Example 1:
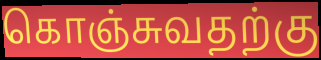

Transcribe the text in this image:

கொஞ்சுவதற்கு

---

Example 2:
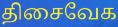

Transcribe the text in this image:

திசைவேக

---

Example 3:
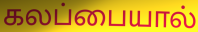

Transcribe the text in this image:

கலப்பையால்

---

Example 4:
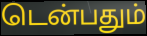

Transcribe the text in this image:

டென்பதும்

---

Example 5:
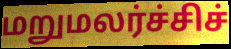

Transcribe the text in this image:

மறுமலர்ச்சிச்